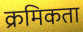
क्रमिकता